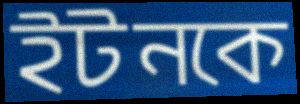
ইটনকে